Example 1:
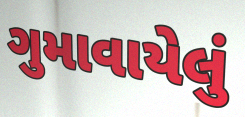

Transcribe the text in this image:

ગુમાવાયેલું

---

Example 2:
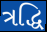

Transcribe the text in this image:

ત્રદ્ધિ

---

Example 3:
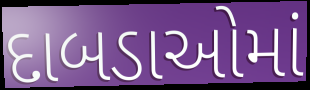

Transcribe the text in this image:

દાબડાઓમાં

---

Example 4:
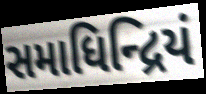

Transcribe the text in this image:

સમાધિન્દ્રિયં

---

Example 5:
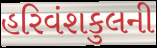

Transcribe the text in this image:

હરિવંશકુલની